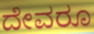
ದೇವರೂ